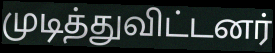
முடித்துவிட்டனர்